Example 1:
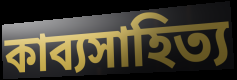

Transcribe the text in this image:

কাব্যসাহিত্য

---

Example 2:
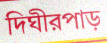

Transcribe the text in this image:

দিঘীরপাড়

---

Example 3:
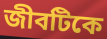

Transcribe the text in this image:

জীবটিকে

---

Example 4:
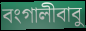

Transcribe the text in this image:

বংগালীবাবু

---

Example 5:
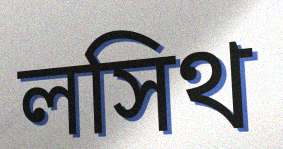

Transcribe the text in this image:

লসিথ